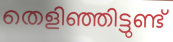
തെളിഞ്ഞിട്ടുണ്ട്